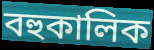
বহুকালিক